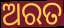
ଅରତ